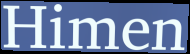
Himen